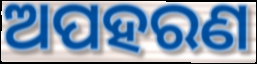
ଅପହରଣ